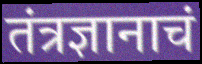
तंत्रज्ञानाचं